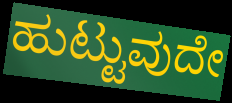
ಹುಟ್ಟುವುದೇ